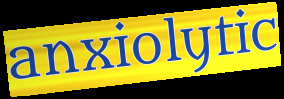
anxiolytic